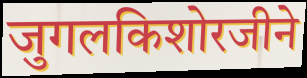
जुगलकिशोरजीने